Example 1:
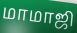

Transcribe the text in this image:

மாமாஜி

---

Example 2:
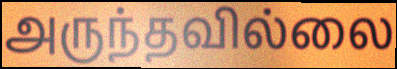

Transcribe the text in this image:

அருந்தவில்லை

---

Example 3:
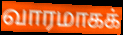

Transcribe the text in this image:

வாரமாகக்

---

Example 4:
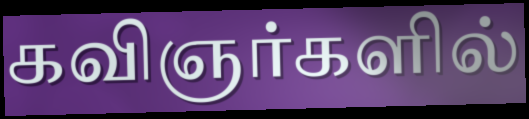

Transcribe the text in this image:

கவிஞர்களில்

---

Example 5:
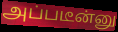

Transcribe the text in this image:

அப்படீன்னு